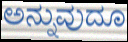
ಅನ್ನುವುದೂ